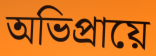
অভিপ্রায়ে